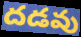
దడవు